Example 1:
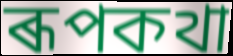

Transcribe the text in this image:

ৰূপকথা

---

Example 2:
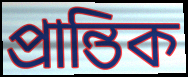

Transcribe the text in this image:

প্ৰান্তিক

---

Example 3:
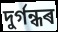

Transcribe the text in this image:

দুৰ্গন্ধৰ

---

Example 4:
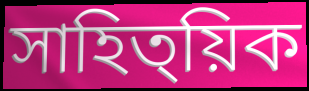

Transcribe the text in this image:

সাহিত্য়িক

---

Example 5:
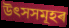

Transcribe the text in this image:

উৎসসমূহৰ